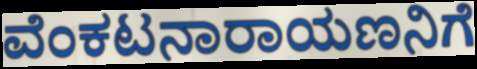
ವೆಂಕಟನಾರಾಯಣನಿಗೆ